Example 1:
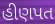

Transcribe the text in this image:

હીણપત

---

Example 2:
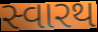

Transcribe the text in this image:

સ્વારથ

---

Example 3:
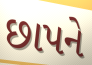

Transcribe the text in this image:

છાપને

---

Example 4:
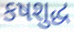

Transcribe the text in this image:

કષશુદ્ધ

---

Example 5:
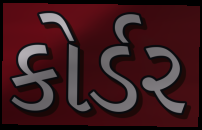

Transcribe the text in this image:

કોર્ડર